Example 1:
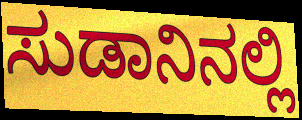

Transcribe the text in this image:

ಸುಡಾನಿನಲ್ಲಿ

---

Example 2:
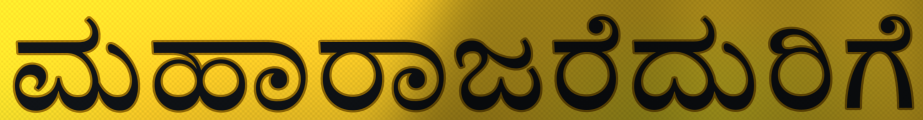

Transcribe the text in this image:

ಮಹಾರಾಜರೆದುರಿಗೆ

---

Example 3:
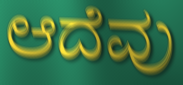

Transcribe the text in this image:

ಆದೆವು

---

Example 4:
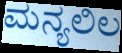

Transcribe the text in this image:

ಮನ್ಯಲಿಲ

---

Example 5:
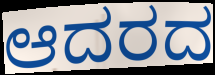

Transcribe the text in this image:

ಆದರದ